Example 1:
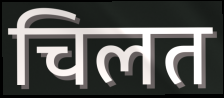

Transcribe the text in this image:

चिलत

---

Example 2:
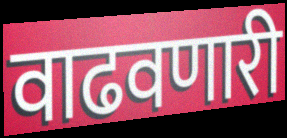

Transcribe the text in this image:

वाढवणारी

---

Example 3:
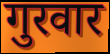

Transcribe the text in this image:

गुरवार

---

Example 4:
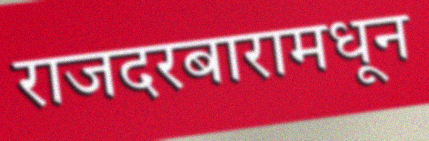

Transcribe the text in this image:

राजदरबारामधून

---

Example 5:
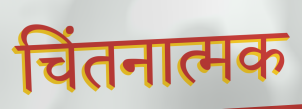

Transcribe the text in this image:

चिंतनात्मक